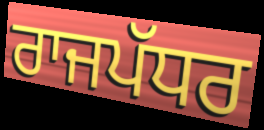
ਰਾਜਪੱਧਰ